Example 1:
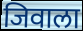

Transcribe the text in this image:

जिवाला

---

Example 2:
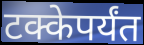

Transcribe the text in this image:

टक्केपर्यंत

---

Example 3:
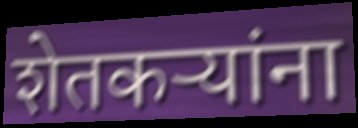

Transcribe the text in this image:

शेतकऱ्यांना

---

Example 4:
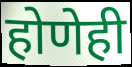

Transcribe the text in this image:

होणेही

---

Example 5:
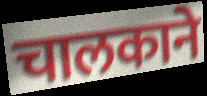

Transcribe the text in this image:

चालकाने